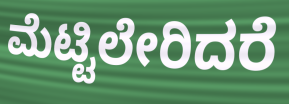
ಮೆಟ್ಟಿಲೇರಿದರೆ